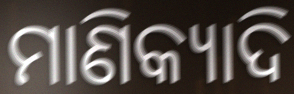
ମାଣିକ୍ୟାଦି